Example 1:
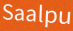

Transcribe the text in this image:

Saalpu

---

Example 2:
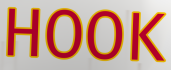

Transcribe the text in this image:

HOOK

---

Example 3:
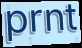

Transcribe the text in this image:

prnt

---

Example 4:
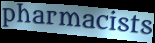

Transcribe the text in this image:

pharmacists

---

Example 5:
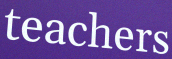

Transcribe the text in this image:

teachers